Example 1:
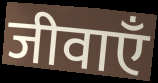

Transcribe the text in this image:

जीवाएँ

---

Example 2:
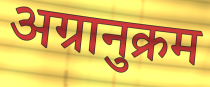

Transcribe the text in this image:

अग्रानुक्रम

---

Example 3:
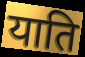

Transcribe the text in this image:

याति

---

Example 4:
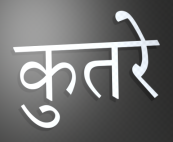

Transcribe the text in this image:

कुतरे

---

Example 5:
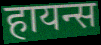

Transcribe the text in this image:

हायन्स